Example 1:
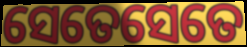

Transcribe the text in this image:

ସେତେସେତେ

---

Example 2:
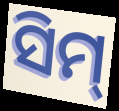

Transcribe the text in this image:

ସିମ୍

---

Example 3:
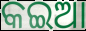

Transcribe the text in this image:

କଇଆ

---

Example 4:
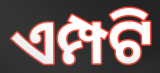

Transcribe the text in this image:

ଏମ୍ପଟି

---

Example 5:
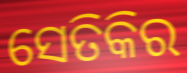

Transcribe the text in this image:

ସେତିକିର